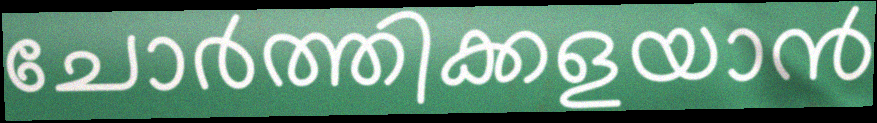
ചോർത്തിക്കളയാൻ